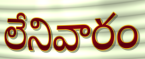
లేనివారం